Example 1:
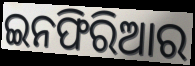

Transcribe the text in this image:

ଇନଫିରିଆର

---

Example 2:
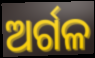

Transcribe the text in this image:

ଅର୍ଗଳ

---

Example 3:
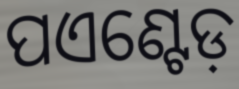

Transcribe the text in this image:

ପଏଣ୍ଟେଡ଼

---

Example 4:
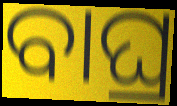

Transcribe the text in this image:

ବାଘ୍ର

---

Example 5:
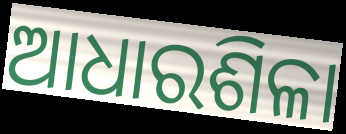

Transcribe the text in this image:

ଆଧାରଶିଳା